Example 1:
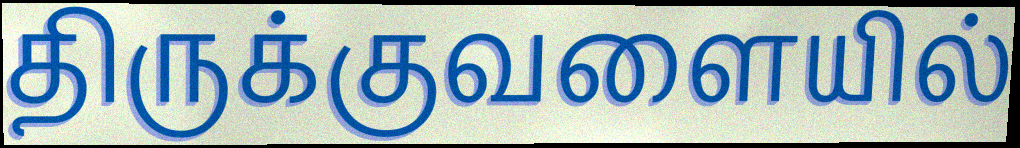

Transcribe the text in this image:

திருக்குவளையில்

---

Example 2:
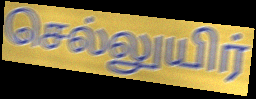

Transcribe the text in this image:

செல்லுயிர்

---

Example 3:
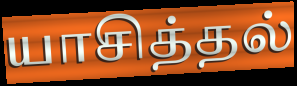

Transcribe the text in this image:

யாசித்தல்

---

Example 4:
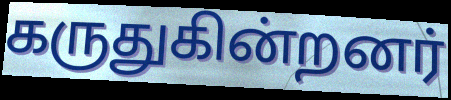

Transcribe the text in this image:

கருதுகின்றனர்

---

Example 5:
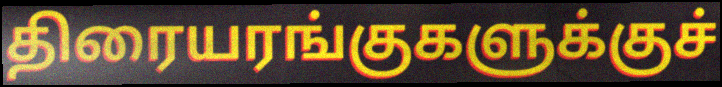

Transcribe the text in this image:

திரையரங்குகளுக்குச்